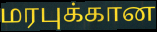
மரபுக்கான